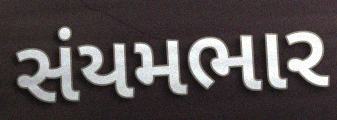
સંયમભાર